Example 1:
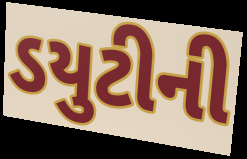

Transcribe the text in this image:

ડયુટીની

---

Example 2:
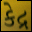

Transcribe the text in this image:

કેદ્ર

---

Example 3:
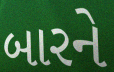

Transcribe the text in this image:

બારને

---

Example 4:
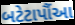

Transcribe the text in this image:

બટેટાપૌંઆ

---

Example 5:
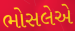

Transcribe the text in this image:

ભોસલેએ